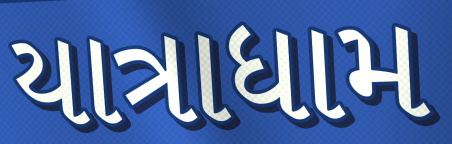
યાત્રાધામ